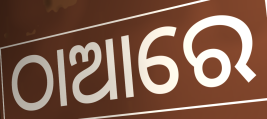
ଠାଆରେ